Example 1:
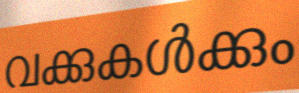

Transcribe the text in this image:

വക്കുകൾക്കും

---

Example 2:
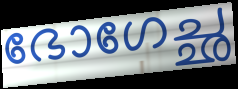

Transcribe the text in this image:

ഭോഗേച്ഛ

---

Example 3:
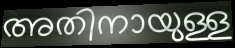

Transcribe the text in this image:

അതിനായുള്ള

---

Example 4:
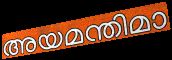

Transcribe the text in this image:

അയമന്തിമാ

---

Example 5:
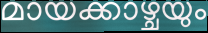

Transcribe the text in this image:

മായക്കാഴ്ചയും